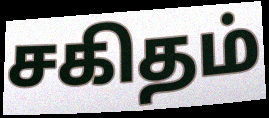
சகிதம்